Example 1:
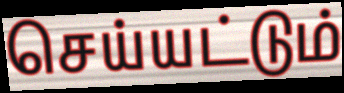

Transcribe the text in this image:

செய்யட்டும்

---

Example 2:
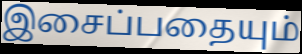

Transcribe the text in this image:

இசைப்பதையும்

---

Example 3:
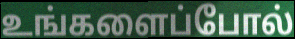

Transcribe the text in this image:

உங்களைப்போல்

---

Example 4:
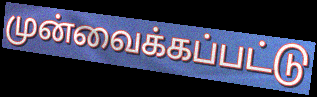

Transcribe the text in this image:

முன்வைக்கப்பட்டு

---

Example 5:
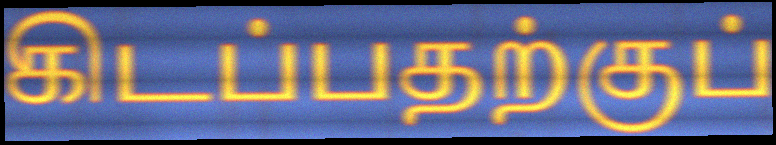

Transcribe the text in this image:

கிடப்பதற்குப்